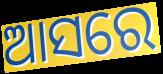
ଆସରେ